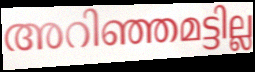
അറിഞ്ഞമട്ടില്ല